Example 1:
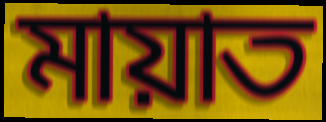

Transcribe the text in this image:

মায়াত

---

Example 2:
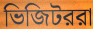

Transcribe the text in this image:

ভিজিটররা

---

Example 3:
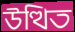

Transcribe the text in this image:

উত্থিত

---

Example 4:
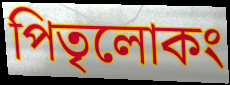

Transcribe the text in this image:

পিতৃলোকং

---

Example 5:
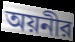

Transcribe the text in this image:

অয়নীর